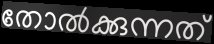
തോൽക്കുന്നത്